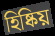
হিষ্কিয়